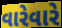
વારેવારે